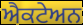
ਐਕਟੇਅਨ